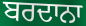
ਬਰਦਾਨਾ